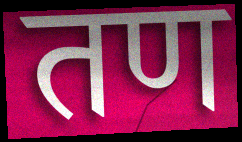
तण